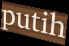
putih